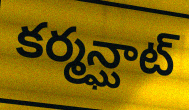
కర్మన్ఘాట్